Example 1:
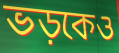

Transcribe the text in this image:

ভড়কেও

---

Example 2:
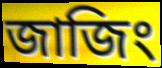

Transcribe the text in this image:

জাজিং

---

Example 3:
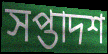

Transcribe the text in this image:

সপ্তাদশ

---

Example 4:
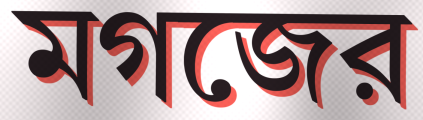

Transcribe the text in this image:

মগজের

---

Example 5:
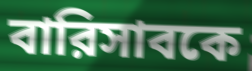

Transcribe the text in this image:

বারিসাবকে